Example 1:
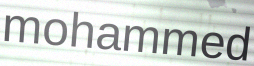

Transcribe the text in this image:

mohammed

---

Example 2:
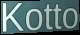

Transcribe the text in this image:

Kotto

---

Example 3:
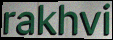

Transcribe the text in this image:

rakhvi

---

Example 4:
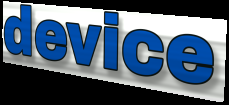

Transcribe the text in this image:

device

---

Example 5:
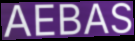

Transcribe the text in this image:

AEBAS